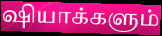
ஷியாக்களும்